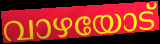
വാഴയോട്